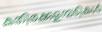
കുതിരക്കുളമ്പടികൾ